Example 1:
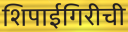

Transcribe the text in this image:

शिपाईगिरीची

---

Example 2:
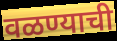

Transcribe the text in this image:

वळण्याची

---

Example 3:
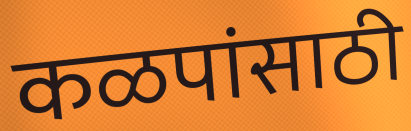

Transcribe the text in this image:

कळपांसाठी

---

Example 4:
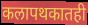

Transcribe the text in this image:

कलापथकातही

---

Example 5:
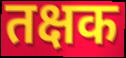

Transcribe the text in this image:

तक्षक